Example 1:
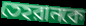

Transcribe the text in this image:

তেহরানকে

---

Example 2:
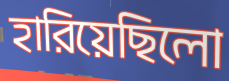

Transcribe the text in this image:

হারিয়েছিলো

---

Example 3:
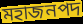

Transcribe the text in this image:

মহাজনপদ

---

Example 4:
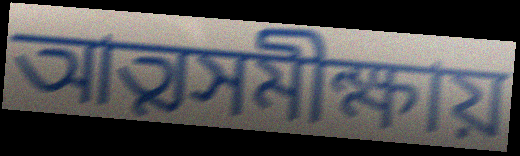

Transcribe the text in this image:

আত্মসমীক্ষায়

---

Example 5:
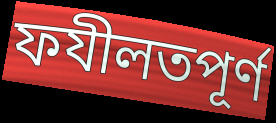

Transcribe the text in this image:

ফযীলতপূর্ণ